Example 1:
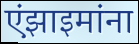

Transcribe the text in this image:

एंझाइमांना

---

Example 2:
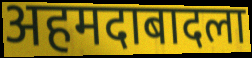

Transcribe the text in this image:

अहमदाबादला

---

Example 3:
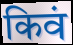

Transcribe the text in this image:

किवं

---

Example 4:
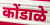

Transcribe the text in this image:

कोंडाळे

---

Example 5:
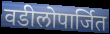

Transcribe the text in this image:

वडीलोपार्जित